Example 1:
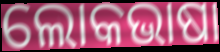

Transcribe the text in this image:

ଲୋକଭାଷା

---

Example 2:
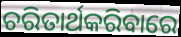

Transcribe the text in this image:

ଚରିତାର୍ଥକରିବାରେ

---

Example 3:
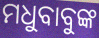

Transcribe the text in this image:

ମଧୁବାବୁଙ୍କ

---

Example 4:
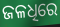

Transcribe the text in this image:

ଜଳଧିରେ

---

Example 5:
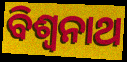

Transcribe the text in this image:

ବିଶ୍ଵନାଥ